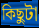
কিছুটা